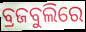
ବ୍ରଜବୁଲିରେ